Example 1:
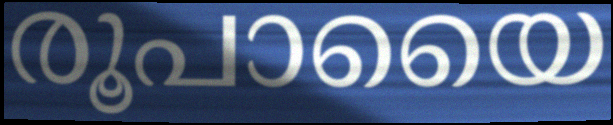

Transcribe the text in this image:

രൂപായൈ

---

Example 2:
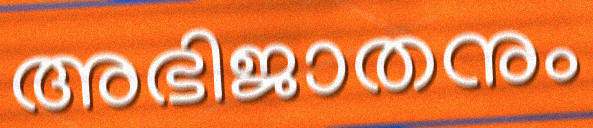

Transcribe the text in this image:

അഭിജാതനും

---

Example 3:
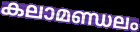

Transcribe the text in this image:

കലാമണ്ഡലം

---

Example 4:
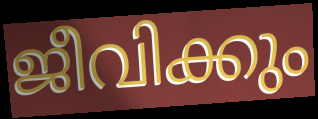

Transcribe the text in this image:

ജീവിക്കും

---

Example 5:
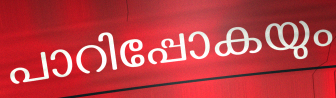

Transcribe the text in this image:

പാറിപ്പോകയും